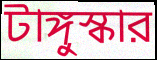
টাঙ্গুস্কার